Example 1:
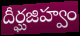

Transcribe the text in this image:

దీర్ఘజిహ్వం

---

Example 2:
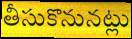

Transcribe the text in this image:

తీసుకొనునట్లు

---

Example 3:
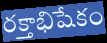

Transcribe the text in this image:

రక్తాభిషేకం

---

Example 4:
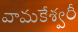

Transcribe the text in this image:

వామకేశ్వరీ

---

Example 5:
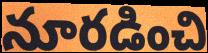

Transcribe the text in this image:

నూరడించి